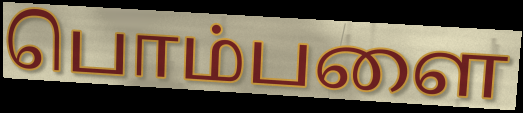
பொம்பளை